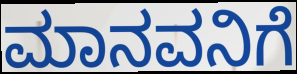
ಮಾನವನಿಗೆ